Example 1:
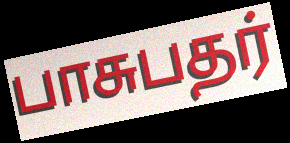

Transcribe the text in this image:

பாசுபதர்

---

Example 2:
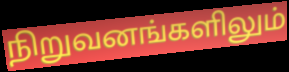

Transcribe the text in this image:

நிறுவனங்களிலும்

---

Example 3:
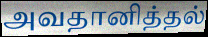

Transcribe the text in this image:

அவதானித்தல்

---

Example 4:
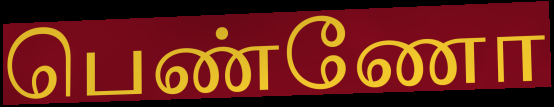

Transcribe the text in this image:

பெண்ணோ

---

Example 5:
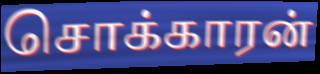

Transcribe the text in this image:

சொக்காரன்